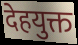
देहयुक्त